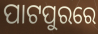
ପାଟପୁରରେ